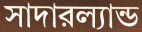
সাদারল্যান্ড